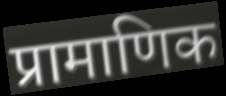
प्रामाणिक